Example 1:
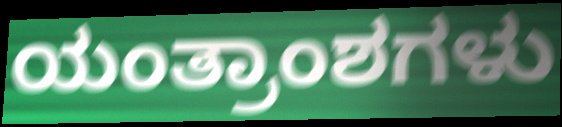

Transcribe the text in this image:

ಯಂತ್ರಾಂಶಗಳು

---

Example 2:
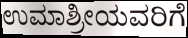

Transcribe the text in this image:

ಉಮಾಶ್ರೀಯವರಿಗೆ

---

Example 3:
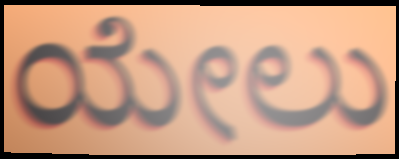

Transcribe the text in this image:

ಯೇಲು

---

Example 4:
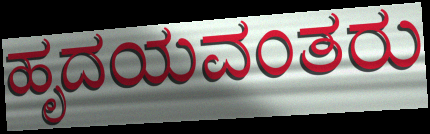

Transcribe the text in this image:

ಹೃದಯವಂತರು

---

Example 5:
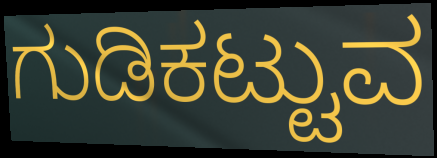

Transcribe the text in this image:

ಗುಡಿಕಟ್ಟುವ